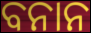
ବନାନ